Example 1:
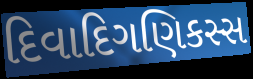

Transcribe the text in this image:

દિવાદિગણિકસ્સ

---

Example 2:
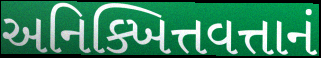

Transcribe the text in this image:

અનિક્ખિત્તવત્તાનં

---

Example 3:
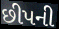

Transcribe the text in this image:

છીપની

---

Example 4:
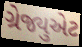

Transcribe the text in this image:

ગ્રેજ્યુએટ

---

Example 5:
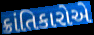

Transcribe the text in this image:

ક્રાંતિકારોએ